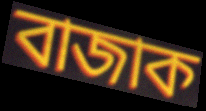
বাজাক